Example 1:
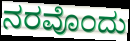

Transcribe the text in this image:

ನರವೊಂದು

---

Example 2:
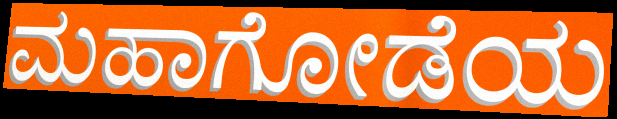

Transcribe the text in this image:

ಮಹಾಗೋಡೆಯ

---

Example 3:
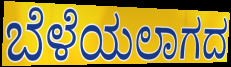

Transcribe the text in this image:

ಬೆಳೆಯಲಾಗದ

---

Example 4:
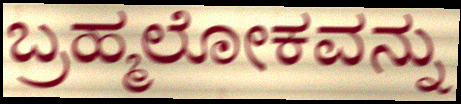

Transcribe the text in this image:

ಬ್ರಹ್ಮಲೋಕವನ್ನು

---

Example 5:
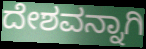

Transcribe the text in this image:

ದೇಶವನ್ನಾಗಿ